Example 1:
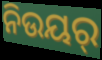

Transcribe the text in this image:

ନିଉୟର୍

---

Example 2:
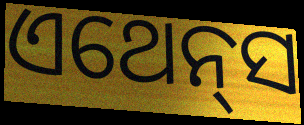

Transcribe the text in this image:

ଏଥେନ୍‌ସ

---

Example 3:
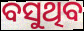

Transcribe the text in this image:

ବସୁଥିବ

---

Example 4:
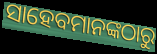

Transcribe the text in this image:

ସାହେବମାନଙ୍କଠାରୁ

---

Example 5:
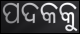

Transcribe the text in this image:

ପଦକକୁ